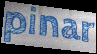
pinar